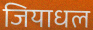
जियाधल